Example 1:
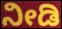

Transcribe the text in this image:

ನೀಡಿ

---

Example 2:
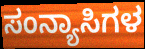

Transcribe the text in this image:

ಸಂನ್ಯಾಸಿಗಳ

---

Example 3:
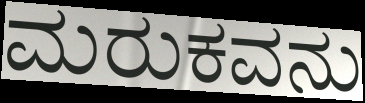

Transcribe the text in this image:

ಮರುಕವನು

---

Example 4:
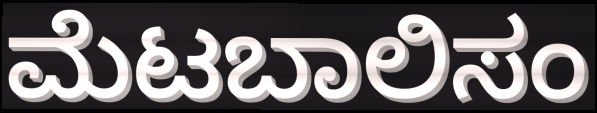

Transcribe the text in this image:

ಮೆಟಬಾಲಿಸಂ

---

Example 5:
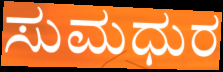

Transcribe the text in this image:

ಸುಮಧುರ